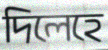
দিলেহে